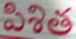
పిశిత